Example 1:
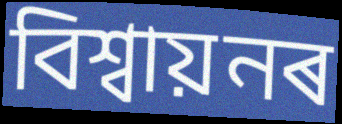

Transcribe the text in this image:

বিশ্বায়নৰ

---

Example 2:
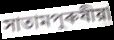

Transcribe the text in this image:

সাতামপুৰুষীয়া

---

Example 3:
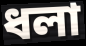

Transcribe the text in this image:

ধলা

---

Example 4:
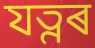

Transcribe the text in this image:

যত্নৰ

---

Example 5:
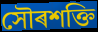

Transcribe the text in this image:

সৌৰশক্তি